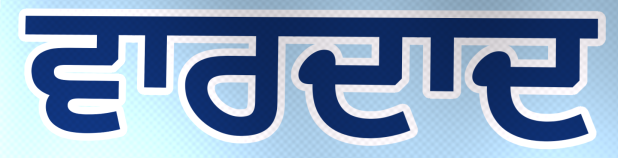
ਵਾਰਦਾਦ